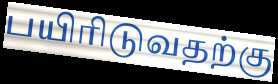
பயிரிடுவதற்கு